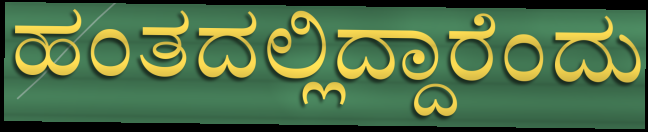
ಹಂತದಲ್ಲಿದ್ದಾರೆಂದು